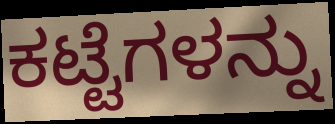
ಕಟ್ಟೆಗಳನ್ನು